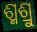
ଶ୍ମଶ୍ରୁ